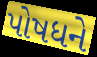
પોષધને